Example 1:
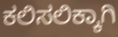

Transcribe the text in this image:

ಕಲಿಸಲಿಕ್ಕಾಗಿ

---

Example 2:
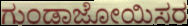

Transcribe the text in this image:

ಗುಂಡಾಜೋಯಿಸರ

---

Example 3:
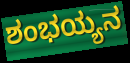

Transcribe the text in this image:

ಶಂಭಯ್ಯನ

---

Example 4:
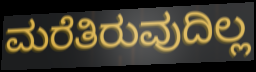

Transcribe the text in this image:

ಮರೆತಿರುವುದಿಲ್ಲ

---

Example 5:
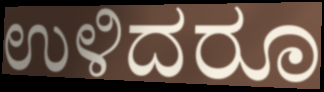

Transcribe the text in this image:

ಉಳಿದರೂ